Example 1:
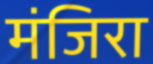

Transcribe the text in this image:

मंजिरा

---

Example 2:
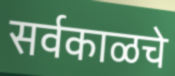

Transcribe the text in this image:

सर्वकाळचे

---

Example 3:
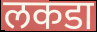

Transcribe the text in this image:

लकडा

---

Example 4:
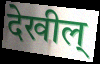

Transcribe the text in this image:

देखील्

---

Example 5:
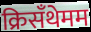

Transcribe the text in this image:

क्रिसँथेमम